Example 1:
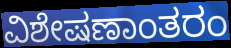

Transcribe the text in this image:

ವಿಶೇಷಣಾಂತರಂ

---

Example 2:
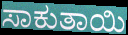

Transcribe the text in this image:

ಸಾಕುತಾಯಿ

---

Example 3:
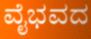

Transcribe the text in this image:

ವೈಭವದ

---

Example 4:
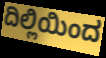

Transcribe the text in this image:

ದಿಲ್ಲಿಯಿಂದ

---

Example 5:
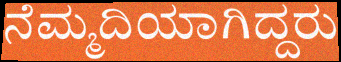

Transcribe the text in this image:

ನೆಮ್ಮದಿಯಾಗಿದ್ದರು